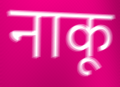
नाकू